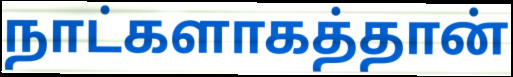
நாட்களாகத்தான்